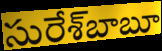
సురేశ్‌బాబూ